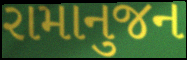
રામાનુજન